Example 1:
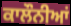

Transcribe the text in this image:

ਕਾਲੌਨੀਆਂ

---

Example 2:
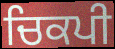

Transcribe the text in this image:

ਚਿਕਪੀ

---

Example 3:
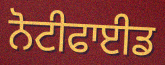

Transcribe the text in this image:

ਨੋਟੀਫਾਈਡ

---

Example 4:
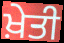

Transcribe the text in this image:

ਖ਼ੇਤੀ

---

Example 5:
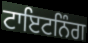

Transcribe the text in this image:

ਟਾਇਟਨਿੰਗ